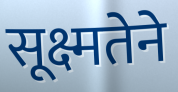
सूक्ष्मतेने